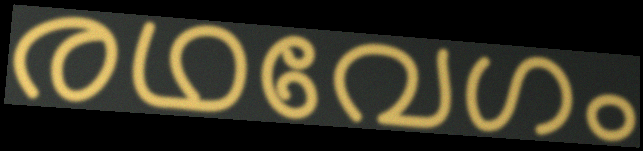
രഥവേഗം